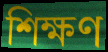
শিক্ষণ